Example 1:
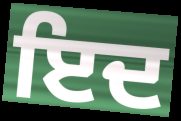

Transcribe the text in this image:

ਇਦ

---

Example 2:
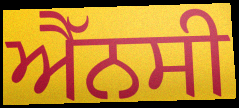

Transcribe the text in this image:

ਐੱਨਸੀ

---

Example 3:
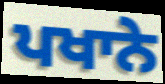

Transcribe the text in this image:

ਪਖਾਨੇ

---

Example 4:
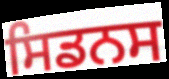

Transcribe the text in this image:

ਸਿਡਨਸ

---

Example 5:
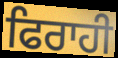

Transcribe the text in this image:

ਫਿਰਾਹੀ